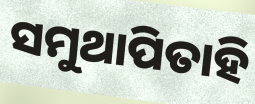
ସମୁଥାପିତାହି